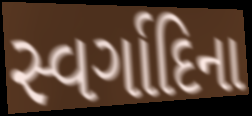
સ્વર્ગાદિના